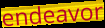
endeavor